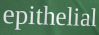
epithelial